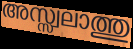
അസ്സ്വലാത്തു